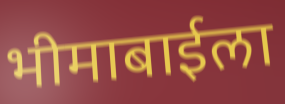
भीमाबाईला